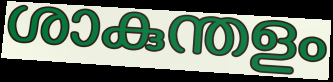
ശാകുന്തളം